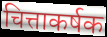
चित्ताकर्षक